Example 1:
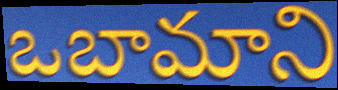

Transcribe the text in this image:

ఒబామాని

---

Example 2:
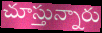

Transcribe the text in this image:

చూస్తున్నారు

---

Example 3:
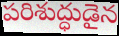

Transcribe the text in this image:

పరిశుద్ధుడైన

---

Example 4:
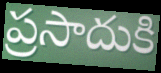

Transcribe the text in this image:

ప్రసాదుకి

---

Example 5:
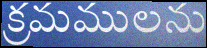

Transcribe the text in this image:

క్రమములను